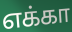
எக்கா